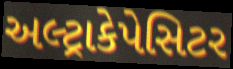
અલ્ટ્રાકેપેસિટર